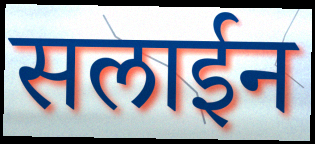
सलाईन